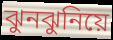
ঝুনঝুনিয়ে